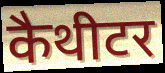
कैथीटर